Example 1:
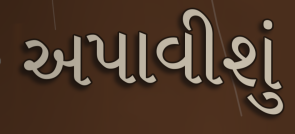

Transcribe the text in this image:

અપાવીશું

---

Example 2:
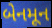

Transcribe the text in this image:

બેનમૂન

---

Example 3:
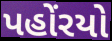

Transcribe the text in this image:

પહોંરયો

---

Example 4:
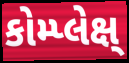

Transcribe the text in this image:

કોમ્પ્લેક્ષ્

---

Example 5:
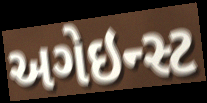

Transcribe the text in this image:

અગેઇન્સ્ટ